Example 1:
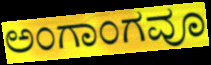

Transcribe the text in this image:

ಅಂಗಾಂಗವೂ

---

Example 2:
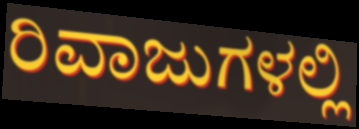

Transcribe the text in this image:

ರಿವಾಜುಗಳಲ್ಲಿ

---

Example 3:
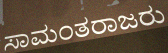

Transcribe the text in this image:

ಸಾಮಂತರಾಜರು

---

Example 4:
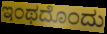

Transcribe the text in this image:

ಇಂಥದೊಂದು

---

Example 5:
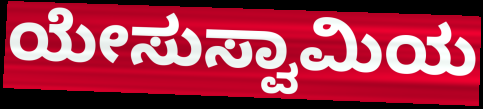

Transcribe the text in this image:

ಯೇಸುಸ್ವಾಮಿಯ